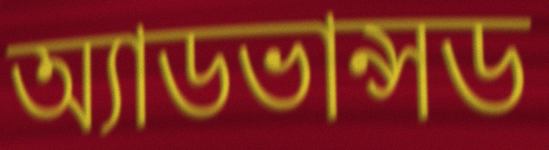
অ্যাডভান্সড